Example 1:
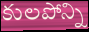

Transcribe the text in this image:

కులపోన్ని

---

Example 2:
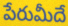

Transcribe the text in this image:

పేరుమీదే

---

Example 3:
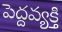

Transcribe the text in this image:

పెద్దవ్యక్తి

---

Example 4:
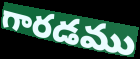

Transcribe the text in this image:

గారడము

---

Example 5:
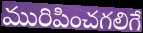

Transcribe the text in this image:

మురిపించగలిగే